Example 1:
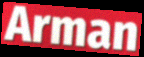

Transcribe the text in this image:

Arman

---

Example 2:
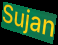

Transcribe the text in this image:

Sujan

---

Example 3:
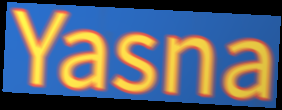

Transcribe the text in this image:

Yasna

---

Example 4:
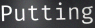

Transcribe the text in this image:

Putting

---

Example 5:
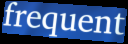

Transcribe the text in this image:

frequent